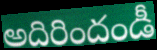
అదిరిందండీ